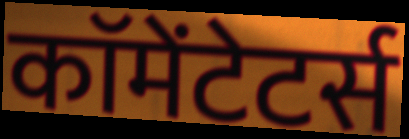
कॉमेंटेटर्स